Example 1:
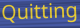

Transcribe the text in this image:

Quitting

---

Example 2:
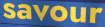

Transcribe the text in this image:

savour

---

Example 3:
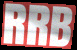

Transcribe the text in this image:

RRB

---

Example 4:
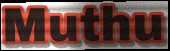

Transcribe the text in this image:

Muthu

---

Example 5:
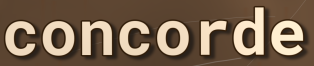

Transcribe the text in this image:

concorde